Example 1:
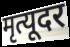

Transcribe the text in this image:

मृत्यूदर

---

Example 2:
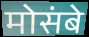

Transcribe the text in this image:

मोसंबे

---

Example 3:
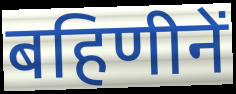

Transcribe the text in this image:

बहिणीनें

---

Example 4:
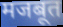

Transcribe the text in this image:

मजबूत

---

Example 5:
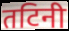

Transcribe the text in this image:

तटिनी